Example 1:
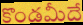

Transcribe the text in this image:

కొండమీదే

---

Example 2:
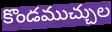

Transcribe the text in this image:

కొండముచ్చుల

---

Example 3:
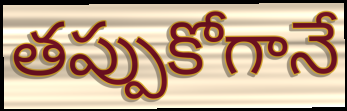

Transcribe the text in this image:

తప్పుకోగానే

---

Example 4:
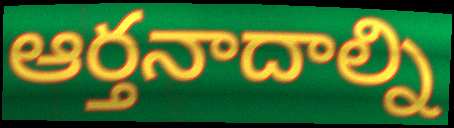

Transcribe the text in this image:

ఆర్తనాదాల్ని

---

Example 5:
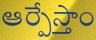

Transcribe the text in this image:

ఆర్పేస్తాం